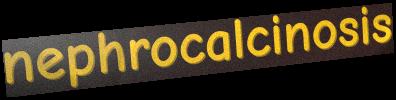
nephrocalcinosis